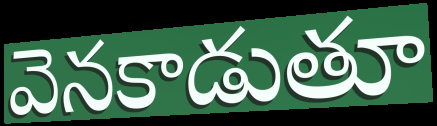
వెనకాడుతూ